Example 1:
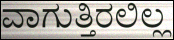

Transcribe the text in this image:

ವಾಗುತ್ತಿರಲಿಲ್ಲ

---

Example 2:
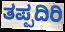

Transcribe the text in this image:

ತಪ್ಪದಿರಿ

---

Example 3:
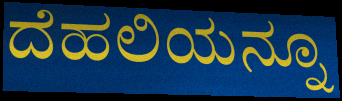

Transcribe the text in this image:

ದೆಹಲಿಯನ್ನೂ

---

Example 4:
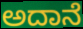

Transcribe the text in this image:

ಅದಾನೆ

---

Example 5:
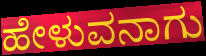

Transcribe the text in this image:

ಹೇಳುವನಾಗು